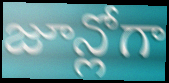
జూన్లోగా